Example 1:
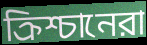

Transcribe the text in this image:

ক্রিশ্চানেরা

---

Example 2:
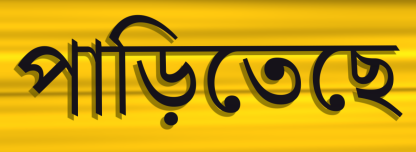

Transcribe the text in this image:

পাড়িতেছে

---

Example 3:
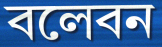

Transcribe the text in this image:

বলেবন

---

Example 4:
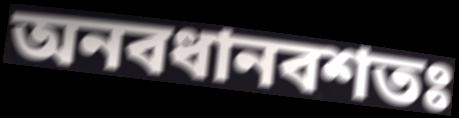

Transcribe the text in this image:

অনবধানবশতঃ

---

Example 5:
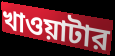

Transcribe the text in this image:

খাওয়াটার